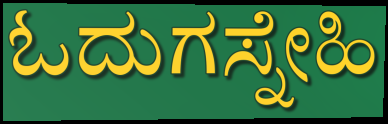
ಓದುಗಸ್ನೇಹಿ